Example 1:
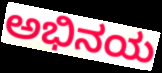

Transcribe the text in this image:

ಅಭಿನಯ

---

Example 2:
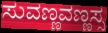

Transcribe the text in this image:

ಸುವಣ್ಣವಣ್ಣಸ್ಸ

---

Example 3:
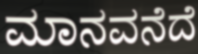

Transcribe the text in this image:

ಮಾನವನೆದೆ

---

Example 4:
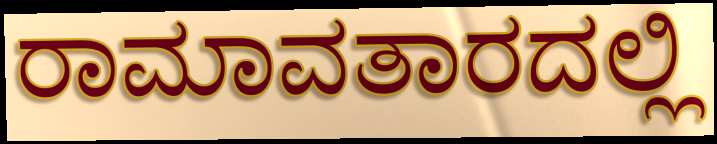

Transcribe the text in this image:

ರಾಮಾವತಾರದಲ್ಲಿ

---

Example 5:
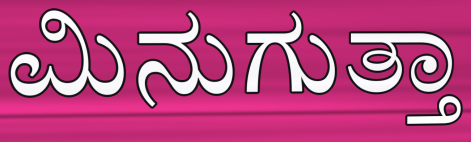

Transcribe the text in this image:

ಮಿನುಗುತ್ತಾ